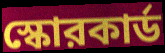
স্কোরকার্ড